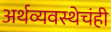
अर्थव्यवस्थेचंही